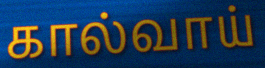
கால்வாய்